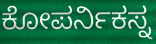
ಕೋಪರ್ನಿಕಸ್ನ